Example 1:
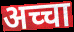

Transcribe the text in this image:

अच्चा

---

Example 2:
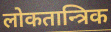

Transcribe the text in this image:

लोकतान्त्रिक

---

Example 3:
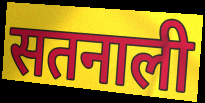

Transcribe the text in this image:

सतनाली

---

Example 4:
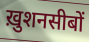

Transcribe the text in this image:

ख़ुशनसीबों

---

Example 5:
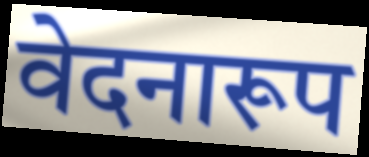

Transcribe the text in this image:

वेदनारूप